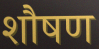
शौषण